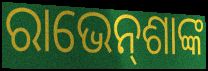
ରାଭେନ୍‌ଶାଙ୍କ